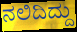
ನಲಿದಿದ್ದು